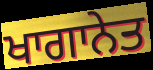
ਖਾਗਾਨੇਤ